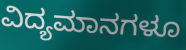
ವಿದ್ಯಮಾನಗಳೂ